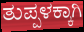
ತುಪ್ಪಳಕ್ಕಾಗಿ